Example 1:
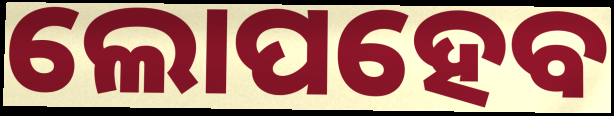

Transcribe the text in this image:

ଲୋପହେବ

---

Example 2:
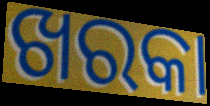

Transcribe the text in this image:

ଖରକା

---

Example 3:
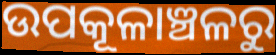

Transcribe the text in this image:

ଉପକୂଳାଞ୍ଚଳରୁ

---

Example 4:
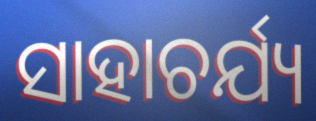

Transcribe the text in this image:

ସାହାଚର୍ଯ୍ୟ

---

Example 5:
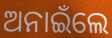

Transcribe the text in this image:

ଅନାଇଁଲେ